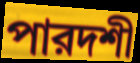
পারদশী